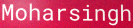
Moharsingh